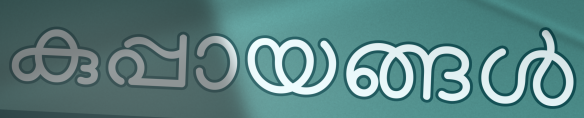
കുപ്പായങ്ങൾ